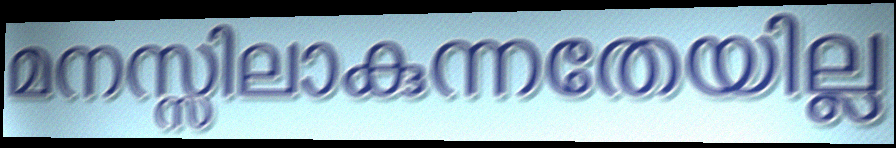
മനസ്സിലാകുന്നതേയില്ല